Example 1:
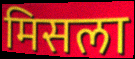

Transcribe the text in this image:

मिसला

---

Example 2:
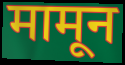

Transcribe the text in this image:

मामून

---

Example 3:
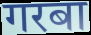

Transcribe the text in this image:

गरबा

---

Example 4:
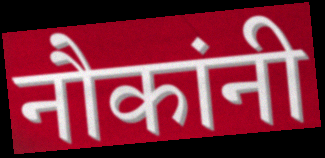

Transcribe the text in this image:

नौकांनी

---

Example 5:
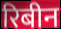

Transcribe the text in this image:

रिबीन